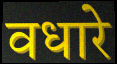
वधारे